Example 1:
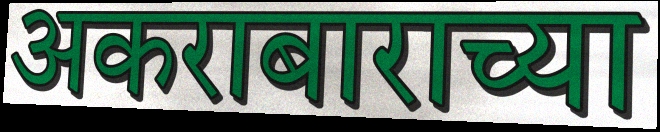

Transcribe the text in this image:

अकराबाराच्या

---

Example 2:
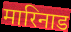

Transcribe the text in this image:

मारिनाड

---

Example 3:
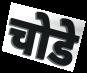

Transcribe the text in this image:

चोडे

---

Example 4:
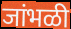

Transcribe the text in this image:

जांभळी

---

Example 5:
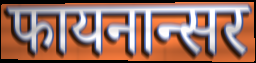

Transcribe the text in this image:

फायनान्सर